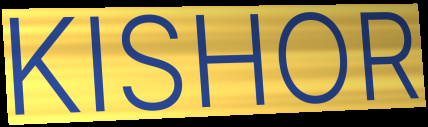
KISHOR